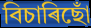
বিচাৰিছোঁ